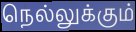
நெல்லுக்கும்